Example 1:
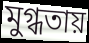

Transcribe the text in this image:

মুগ্ধতায়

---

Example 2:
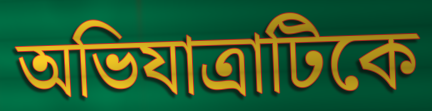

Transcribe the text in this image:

অভিযাত্রাটিকে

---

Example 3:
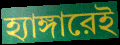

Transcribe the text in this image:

হ্যাঙ্গারেই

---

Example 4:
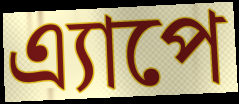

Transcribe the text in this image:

এ্যাপে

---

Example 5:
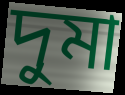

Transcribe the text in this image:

দুমা